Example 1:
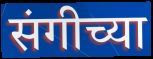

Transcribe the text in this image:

संगीच्या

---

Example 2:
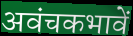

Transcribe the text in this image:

अवंचकभावें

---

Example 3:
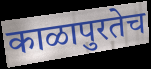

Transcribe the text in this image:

काळापुरतेच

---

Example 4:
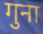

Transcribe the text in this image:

गुना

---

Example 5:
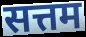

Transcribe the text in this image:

सत्तम